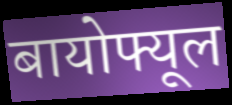
बायोफ्यूल